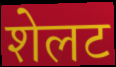
शेलट